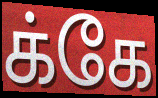
க்கே